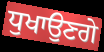
ਧੁਖਾਉਣਗੇ